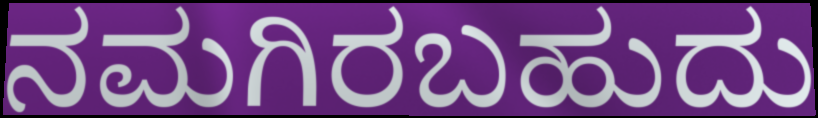
ನಮಗಿರಬಹುದು